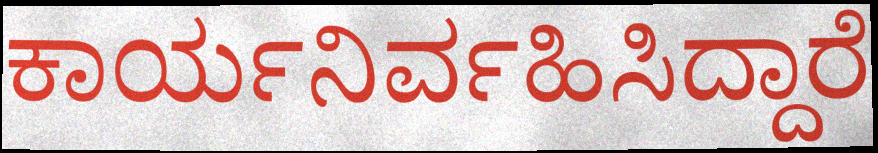
ಕಾರ್ಯನಿರ್ವಹಿಸಿದ್ದಾರೆ